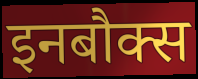
इनबौक्स